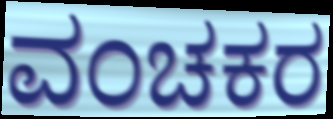
ವಂಚಕರ